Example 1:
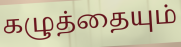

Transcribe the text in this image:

கழுத்தையும்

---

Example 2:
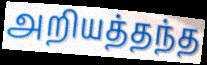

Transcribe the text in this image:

அறியத்தந்த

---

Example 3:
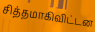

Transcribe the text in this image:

சித்தமாகிவிட்டன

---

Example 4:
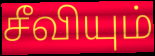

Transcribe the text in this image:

சீவியும்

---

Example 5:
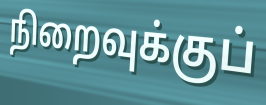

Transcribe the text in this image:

நிறைவுக்குப்